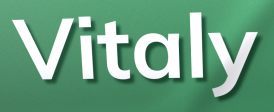
Vitaly